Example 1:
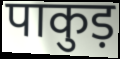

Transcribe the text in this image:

पाकुड़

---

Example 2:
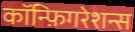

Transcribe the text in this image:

कॉन्फ़िगरेशन्स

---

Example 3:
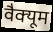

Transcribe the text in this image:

वैक्‍यूम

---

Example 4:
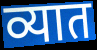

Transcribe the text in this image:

व्यात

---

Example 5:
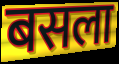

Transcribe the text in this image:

बसला